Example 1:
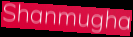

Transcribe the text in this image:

Shanmugha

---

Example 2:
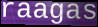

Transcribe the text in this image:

raagas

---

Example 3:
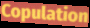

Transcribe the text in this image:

Copulation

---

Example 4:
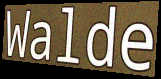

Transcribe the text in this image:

Walde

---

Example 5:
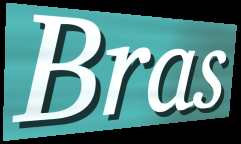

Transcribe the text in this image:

Bras